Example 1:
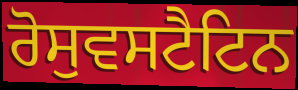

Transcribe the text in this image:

ਰੋਸੁਵਸਟੈਟਿਨ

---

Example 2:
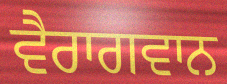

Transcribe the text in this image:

ਵੈਰਾਗਵਾਨ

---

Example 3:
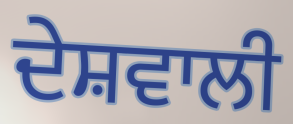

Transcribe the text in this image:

ਦੇਸ਼ਵਾਲੀ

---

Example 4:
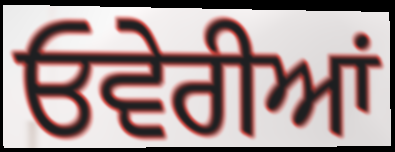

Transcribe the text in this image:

ਓਵੇਰੀਆਂ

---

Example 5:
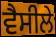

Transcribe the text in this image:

ਵੈਸੀਲੇ